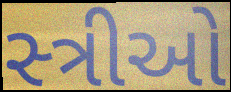
સ્‍ત્રીઓ